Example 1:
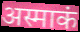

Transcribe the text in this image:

अस्माकं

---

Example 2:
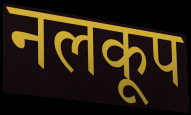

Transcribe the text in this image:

नलकूप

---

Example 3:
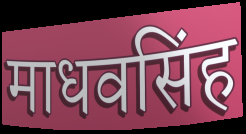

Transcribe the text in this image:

माधवसिंह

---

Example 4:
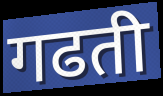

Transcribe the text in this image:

गढती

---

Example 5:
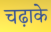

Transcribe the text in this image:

चढ़ाके